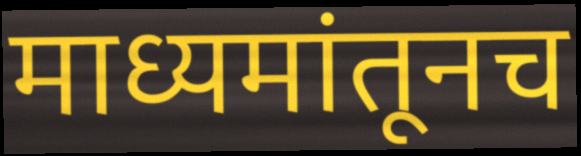
माध्यमांतूनच